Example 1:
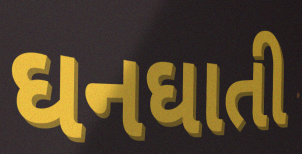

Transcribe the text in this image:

ઘનઘાતી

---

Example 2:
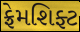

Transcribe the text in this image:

ફ્રેમશિફ્ટ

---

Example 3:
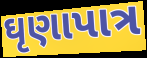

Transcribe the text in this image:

ઘૃણાપાત્ર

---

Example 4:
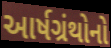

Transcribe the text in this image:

આર્ષગ્રંથોનો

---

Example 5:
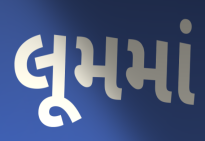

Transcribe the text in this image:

લૂમમાં